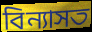
বিন্যাসত